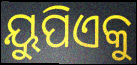
ୟୁପିଏକୁ